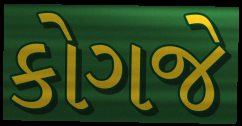
કોગજે